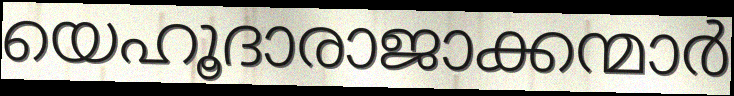
യെഹൂദാരാജാക്കന്മാർ